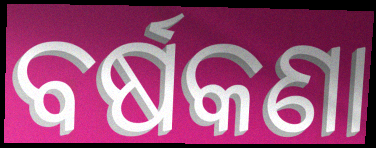
ବର୍ଷକଣା